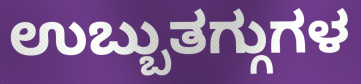
ಉಬ್ಬುತಗ್ಗುಗಳ